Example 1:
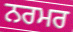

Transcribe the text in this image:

ਨਰਮਰ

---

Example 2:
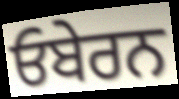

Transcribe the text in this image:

ਓਬੇਰਨ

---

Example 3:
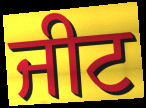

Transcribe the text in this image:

ਜੀਟ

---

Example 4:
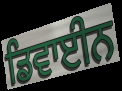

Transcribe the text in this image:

ਡਿਵਾਈਨ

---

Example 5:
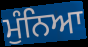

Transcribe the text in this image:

ਮੁੰਨਿਆ